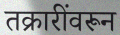
तक्रारींवरून